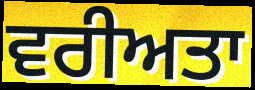
ਵਰੀਅਤਾ